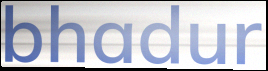
bhadur